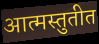
आत्मस्तुतीत